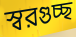
স্বরগুচ্ছ